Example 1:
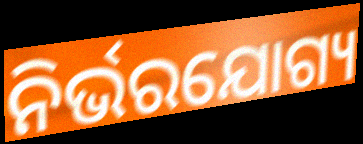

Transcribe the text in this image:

ନିର୍ଭରଯୋଗ୍ୟ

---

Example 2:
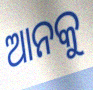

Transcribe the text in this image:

ଆନକୁ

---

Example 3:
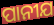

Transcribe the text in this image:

ପାନୀଯ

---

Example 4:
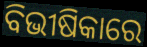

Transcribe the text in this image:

ବିଭୀଷିକାରେ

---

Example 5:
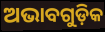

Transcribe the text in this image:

ଅଭାବଗୁଡ଼ିକ